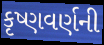
કૃષ્ણવર્ણની